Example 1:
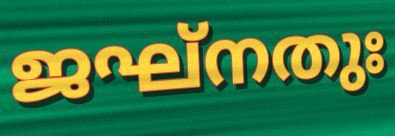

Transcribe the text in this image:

ജഘ്നതുഃ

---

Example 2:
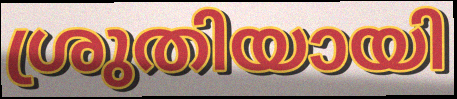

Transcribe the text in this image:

ശ്രുതിയായി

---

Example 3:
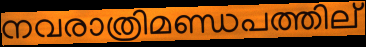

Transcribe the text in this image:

നവരാത്രിമണ്ഡപത്തില്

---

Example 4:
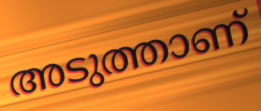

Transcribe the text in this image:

അടുത്താണ്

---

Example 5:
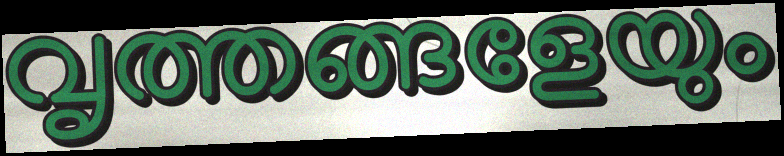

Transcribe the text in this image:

വൃത്തങ്ങളേയും